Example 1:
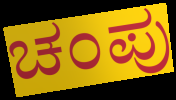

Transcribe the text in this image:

ಚಂಪು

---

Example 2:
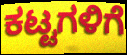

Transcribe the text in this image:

ಕಟ್ಟಗಳಿಗೆ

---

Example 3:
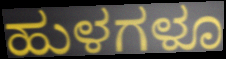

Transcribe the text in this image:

ಹುಳಗಳೂ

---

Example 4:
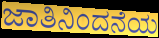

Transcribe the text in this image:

ಜಾತಿನಿಂದನೆಯ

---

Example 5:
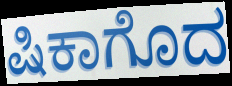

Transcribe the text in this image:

ಷಿಕಾಗೊದ